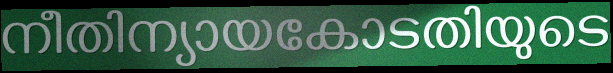
നീതിന്യായകോടതിയുടെ